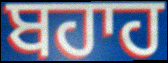
ਬਹਾਹ